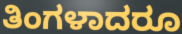
ತಿಂಗಳಾದರೂ